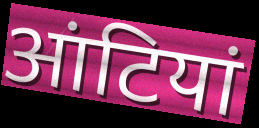
आंटियां